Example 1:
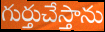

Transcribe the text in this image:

గుర్తుచేస్తాను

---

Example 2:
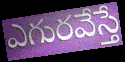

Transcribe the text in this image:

ఎగురవేస్తే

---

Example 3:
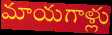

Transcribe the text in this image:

మాయగాళ్లు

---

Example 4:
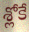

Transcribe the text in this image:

శ్లోకే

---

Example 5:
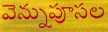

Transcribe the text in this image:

వెన్నుపూసల